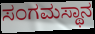
ಸಂಗಮಸ್ಥಾನ